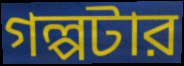
গল্পটার